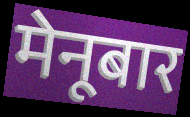
मेनूबार